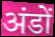
अंडों